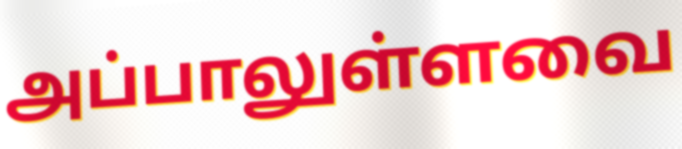
அப்பாலுள்ளவை